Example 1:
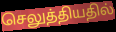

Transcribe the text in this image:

செலுத்தியதில்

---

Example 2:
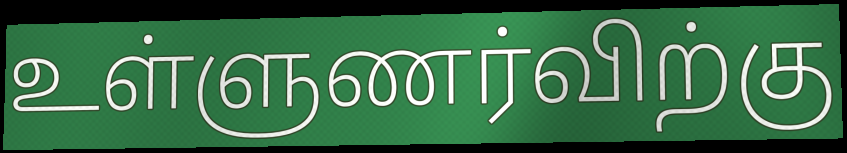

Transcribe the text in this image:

உள்ளுணர்விற்கு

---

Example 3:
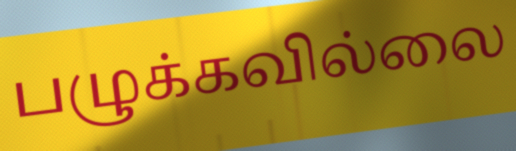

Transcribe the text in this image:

பழுக்கவில்லை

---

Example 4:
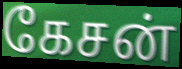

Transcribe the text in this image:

கேசன்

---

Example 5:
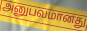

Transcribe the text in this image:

அனுபவமானது